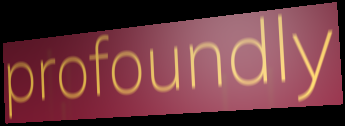
profoundly